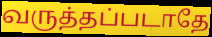
வருத்தப்படாதே